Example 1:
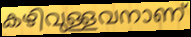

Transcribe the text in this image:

കഴിവുള്ളവനാണ്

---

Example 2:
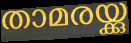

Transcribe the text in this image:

താമരയ്ക്കു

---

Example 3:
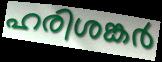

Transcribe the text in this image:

ഹരിശങ്കർ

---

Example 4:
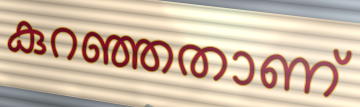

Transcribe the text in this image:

കുറഞ്ഞതാണ്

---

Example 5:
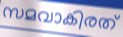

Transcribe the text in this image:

സമവാകിരത്